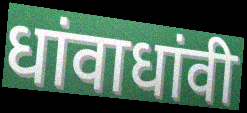
धांवाधांवी